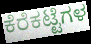
ಕೆರೆಕಟ್ಟೆಗಳ